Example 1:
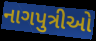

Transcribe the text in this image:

નાગપુત્રીઓ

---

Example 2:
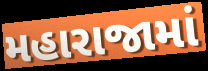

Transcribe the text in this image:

મહારાજામાં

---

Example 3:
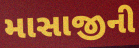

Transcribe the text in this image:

માસાજીની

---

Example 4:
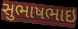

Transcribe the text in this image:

સુભાષભાઇ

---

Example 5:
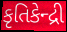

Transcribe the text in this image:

કૃતિકેન્દ્રી